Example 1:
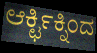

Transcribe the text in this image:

ಆರ್ಕ್ಟಿಕ್ನಿಂದ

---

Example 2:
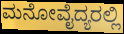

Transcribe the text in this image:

ಮನೋವೈದ್ಯರಲ್ಲಿ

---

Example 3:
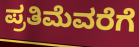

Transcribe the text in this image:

ಪ್ರತಿಮೆವರೆಗೆ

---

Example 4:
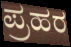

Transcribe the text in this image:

ಪ್ರಹರ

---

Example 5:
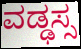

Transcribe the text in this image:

ವಡ್ಢಸ್ಸ